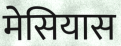
मेसियास